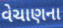
વેચાણના